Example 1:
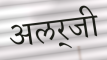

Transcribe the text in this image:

अलर्जी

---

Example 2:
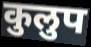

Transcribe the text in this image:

कुलुप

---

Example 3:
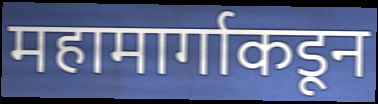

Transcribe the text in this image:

महामार्गाकडून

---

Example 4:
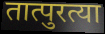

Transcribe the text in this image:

तात्पुरत्या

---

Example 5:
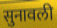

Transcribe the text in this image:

सुनावली